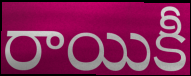
రాయికీ